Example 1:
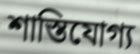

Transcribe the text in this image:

শাস্তিযোগ্য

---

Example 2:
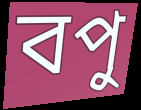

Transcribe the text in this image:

বপু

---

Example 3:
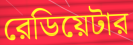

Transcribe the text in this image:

রেডিয়েটার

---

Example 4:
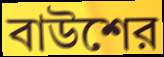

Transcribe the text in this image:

বাউশের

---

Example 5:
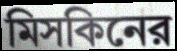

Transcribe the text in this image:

মিসকিনের